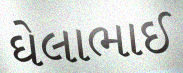
ઘેલાભાઈ